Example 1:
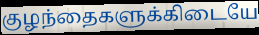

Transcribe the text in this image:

குழந்தைகளுக்கிடையே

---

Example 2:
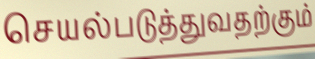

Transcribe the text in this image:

செயல்படுத்துவதற்கும்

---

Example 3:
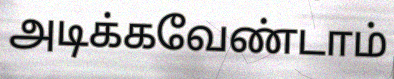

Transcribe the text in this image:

அடிக்கவேண்டாம்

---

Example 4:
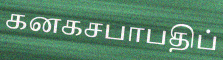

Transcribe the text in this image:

கனகசபாபதிப்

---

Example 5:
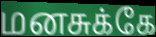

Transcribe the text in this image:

மனசுக்கே